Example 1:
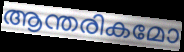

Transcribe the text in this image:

ആന്തരികമോ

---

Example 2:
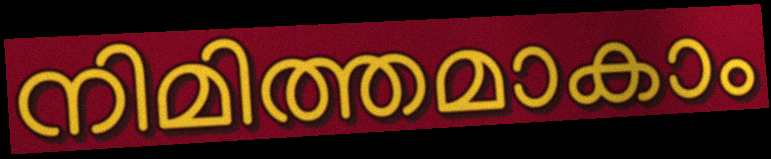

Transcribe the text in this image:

നിമിത്തമാകാം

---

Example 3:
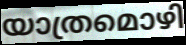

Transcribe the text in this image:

യാത്രമൊഴി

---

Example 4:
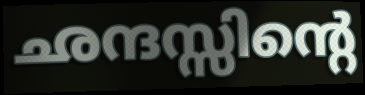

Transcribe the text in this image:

ഛന്ദസ്സിന്റെ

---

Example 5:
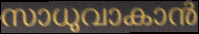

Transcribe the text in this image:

സാധുവാകാൻ